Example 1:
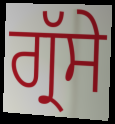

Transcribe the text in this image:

ਗ੍ਰੱਸੇ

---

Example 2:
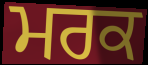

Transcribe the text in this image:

ਮਰਕ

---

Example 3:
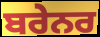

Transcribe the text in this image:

ਬਰੇਨਰ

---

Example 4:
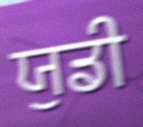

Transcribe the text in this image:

ਯੁਡੀ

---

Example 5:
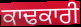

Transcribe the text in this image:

ਕਾਢਕਾਰੀ